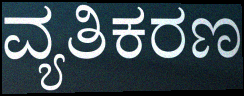
ವ್ಯತಿಕರಣ